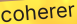
coherer